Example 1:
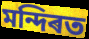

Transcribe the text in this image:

মন্দিৰত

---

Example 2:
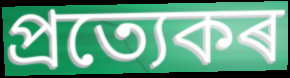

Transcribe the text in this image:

প্ৰত্যেকৰ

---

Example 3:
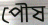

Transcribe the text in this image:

পৌষ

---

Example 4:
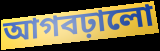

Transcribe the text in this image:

আগবঢ়ালো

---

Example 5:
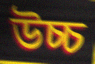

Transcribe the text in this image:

উচ্চ